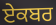
ਏਕਬਰ